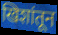
खिशांतून